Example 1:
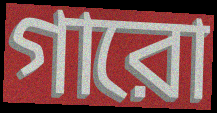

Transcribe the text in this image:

গারো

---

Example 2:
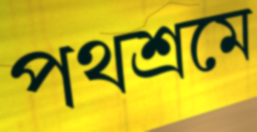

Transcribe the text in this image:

পথশ্রমে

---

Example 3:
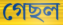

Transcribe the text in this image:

গেছল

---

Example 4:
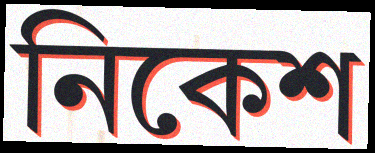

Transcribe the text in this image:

নিকেশ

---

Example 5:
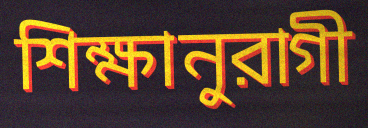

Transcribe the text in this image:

শিক্ষানুরাগী